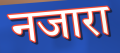
नजारा